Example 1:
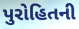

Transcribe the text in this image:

પુરોહિતની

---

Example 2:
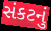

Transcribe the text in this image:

સંકટનું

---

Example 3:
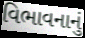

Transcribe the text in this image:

વિભાવનાનું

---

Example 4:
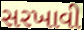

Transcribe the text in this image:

સરખાવી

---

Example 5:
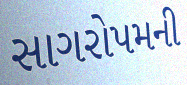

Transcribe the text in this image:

સાગરોપમની